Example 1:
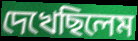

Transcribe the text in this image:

দেখেছিলেম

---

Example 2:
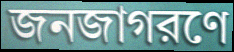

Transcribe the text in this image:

জনজাগরণে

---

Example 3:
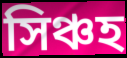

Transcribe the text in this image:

সিঞ্চহ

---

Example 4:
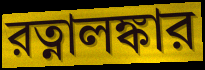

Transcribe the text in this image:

রত্নালঙ্কার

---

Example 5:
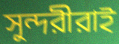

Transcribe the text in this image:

সুন্দরীরাই